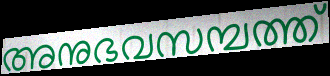
അനുഭവസമ്പത്ത്